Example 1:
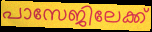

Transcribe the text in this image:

പാസേജിലേക്ക്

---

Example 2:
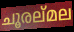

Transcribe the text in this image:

ചൂരല്മല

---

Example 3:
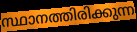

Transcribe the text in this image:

സ്ഥാനത്തിരിക്കുന്ന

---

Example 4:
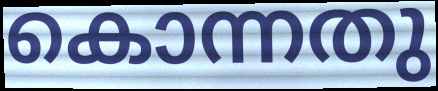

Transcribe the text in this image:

കൊന്നതു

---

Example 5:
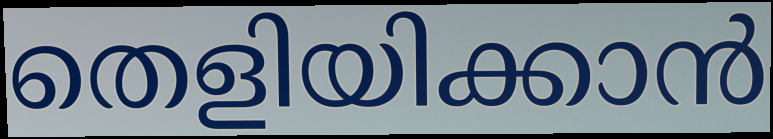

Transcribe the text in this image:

തെളിയിക്കാൻ